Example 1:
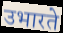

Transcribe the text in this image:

उभारते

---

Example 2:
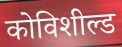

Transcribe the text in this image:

कोविशील्ड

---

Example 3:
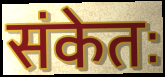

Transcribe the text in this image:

संकेतः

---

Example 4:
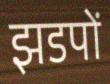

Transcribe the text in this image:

झडपों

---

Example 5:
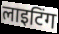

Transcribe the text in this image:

लाइटिंग